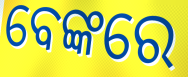
ବେଙ୍କରେ